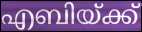
എബിയ്ക്ക്